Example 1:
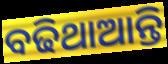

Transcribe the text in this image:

ବଢିଥାଆନ୍ତି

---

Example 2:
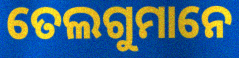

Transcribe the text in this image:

ତେଲଗୁମାନେ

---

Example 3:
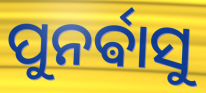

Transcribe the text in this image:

ପୁନର୍ଵାସୁ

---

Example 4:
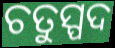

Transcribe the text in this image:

ଚତୁସ୍ପଦ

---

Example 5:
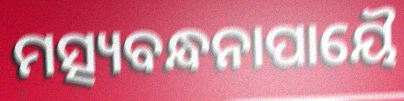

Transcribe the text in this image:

ମତ୍ସ୍ୟବନ୍ଧନାପାୟୈ